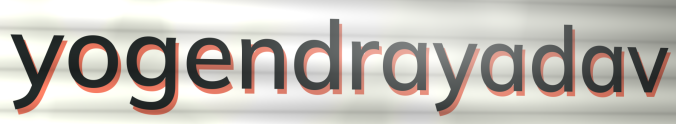
yogendrayadav